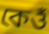
কেওঁ